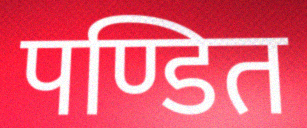
पण्डित